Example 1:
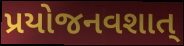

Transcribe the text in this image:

પ્રયોજનવશાત્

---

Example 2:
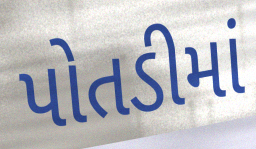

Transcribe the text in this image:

પોતડીમાં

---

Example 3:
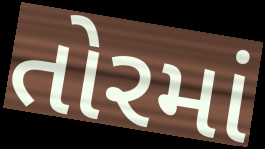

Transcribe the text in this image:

તોરમાં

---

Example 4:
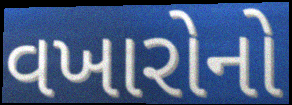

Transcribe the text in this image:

વખારોનો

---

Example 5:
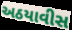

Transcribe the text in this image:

અઠયાવીસ